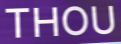
THOU